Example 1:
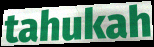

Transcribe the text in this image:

tahukah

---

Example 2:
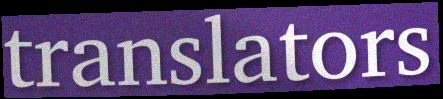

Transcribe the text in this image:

translators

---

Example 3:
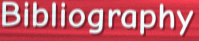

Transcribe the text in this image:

Bibliography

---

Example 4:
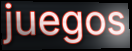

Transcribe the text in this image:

juegos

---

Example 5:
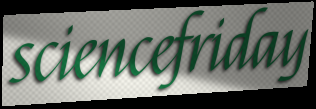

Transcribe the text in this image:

sciencefriday